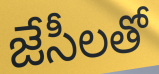
జేసీలతో